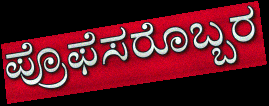
ಪ್ರೊಫೆಸರೊಬ್ಬರ